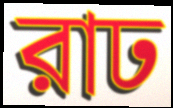
রাঢ